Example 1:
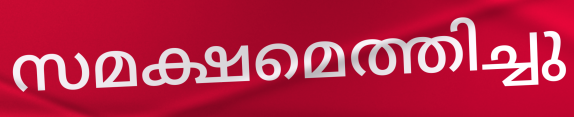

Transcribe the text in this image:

സമക്ഷമെത്തിച്ചു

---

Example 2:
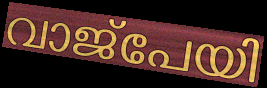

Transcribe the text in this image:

വാജ്പേയി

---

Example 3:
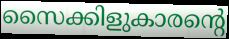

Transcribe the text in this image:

സൈക്കിളുകാരന്റെ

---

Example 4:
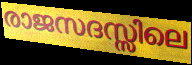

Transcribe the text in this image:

രാജസദസ്സിലെ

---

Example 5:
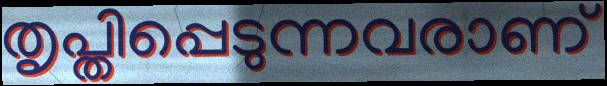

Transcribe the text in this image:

തൃപ്തിപ്പെടുന്നവരാണ്